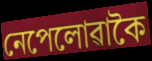
নেপেলোৱাকৈ